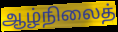
ஆழ்நிலைத்